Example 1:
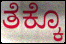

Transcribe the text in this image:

ತೆಕ್ಕೊ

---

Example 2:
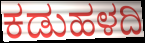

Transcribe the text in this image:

ಕಡುಹಳದಿ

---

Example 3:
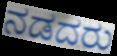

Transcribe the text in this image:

ನಡದರು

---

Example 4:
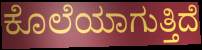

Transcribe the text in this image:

ಕೊಲೆಯಾಗುತ್ತಿದೆ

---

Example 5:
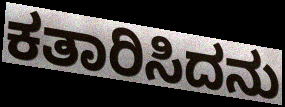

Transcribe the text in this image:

ಕತಾರಿಸಿದನು